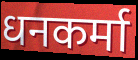
धनकर्मा